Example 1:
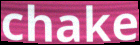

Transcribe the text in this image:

chake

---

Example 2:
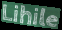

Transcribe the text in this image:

Lihile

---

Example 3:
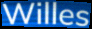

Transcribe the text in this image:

Willes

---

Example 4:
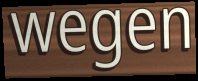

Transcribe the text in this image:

wegen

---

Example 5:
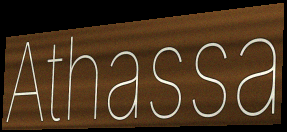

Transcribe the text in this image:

Athassa